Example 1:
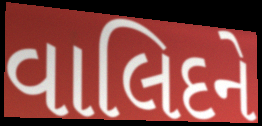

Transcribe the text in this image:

વાલિદને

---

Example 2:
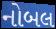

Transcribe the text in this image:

નોબલ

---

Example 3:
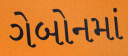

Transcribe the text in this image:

ગેબોનમાં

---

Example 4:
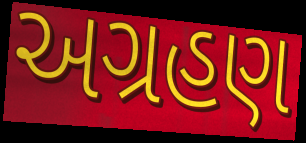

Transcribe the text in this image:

અગ્રહણ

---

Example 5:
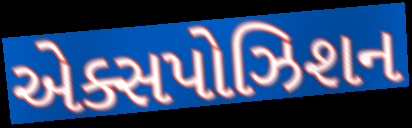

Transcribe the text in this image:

એક્સપોઝિશન